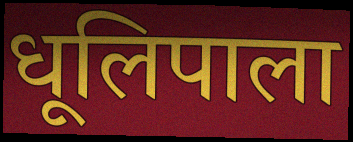
धूलिपाला